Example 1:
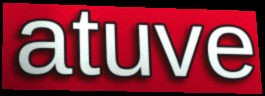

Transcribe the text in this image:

atuve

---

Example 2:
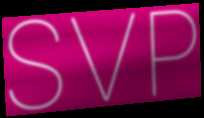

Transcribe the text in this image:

SVP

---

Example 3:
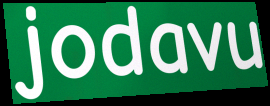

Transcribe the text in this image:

jodavu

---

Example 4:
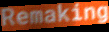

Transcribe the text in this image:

Remaking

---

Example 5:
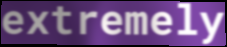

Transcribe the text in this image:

extremely